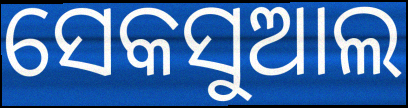
ସେକସୁଆଲ